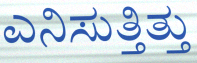
ಎನಿಸುತ್ತಿತ್ತು